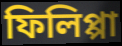
ফিলিপ্পা